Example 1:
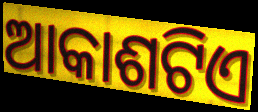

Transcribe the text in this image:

ଆକାଶଟିଏ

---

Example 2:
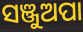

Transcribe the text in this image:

ସଞ୍ଜୁଅପା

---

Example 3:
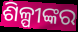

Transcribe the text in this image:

ଶିଳ୍ପୀଙ୍କର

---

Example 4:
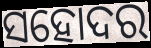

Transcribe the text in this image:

ସହୋଦର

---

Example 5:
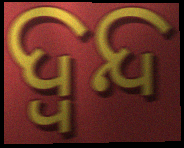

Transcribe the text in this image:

ଦ୍ଵନ୍ଦ